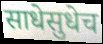
साधेसुधेच